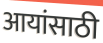
आयांसाठी